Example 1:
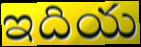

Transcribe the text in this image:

ఇదియ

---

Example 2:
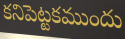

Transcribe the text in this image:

కనిపెట్టకముందు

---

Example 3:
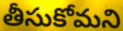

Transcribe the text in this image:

తీసుకోమని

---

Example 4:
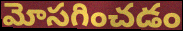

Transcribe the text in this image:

మోసగించడం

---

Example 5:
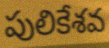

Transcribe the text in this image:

పులికేశవ